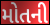
મોતની